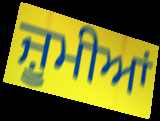
ਜ਼ੂਮੀਆਂ